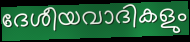
ദേശീയവാദികളും